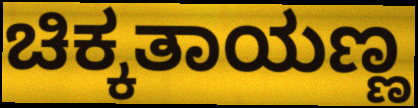
ಚಿಕ್ಕತಾಯಣ್ಣ